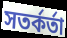
সতর্কর্তা